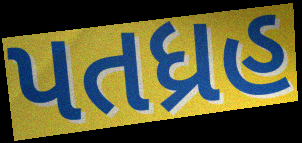
પતધ્રહ